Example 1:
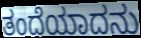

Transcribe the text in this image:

ತಂದೆಯಾದನು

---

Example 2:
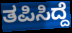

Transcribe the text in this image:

ತಪಿಸಿದ್ದೆ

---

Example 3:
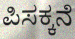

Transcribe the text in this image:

ಪಿಸಕ್ಕನೆ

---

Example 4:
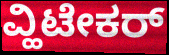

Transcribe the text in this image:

ವ್ಹಿಟೇಕರ್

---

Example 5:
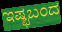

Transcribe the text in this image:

ಇಷ್ಟಬಂದ